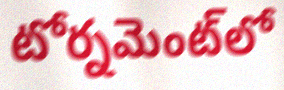
టోర్నమెంట్‌లో